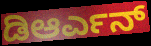
ಡಿಆರ್ಎನ್